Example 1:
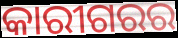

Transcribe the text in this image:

କାରୀଗରର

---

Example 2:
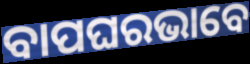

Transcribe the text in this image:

ବାପଘରଭାବେ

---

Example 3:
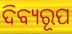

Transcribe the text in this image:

ଦିବ୍ୟରୂପ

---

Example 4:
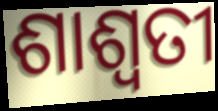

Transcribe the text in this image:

ଶାଶ୍ଵତୀ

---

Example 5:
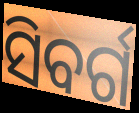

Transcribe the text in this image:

ସିବର୍ଗ